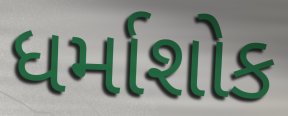
ધર્માશોક